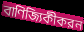
বাণিজ্যিকীকরন